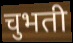
चुभती